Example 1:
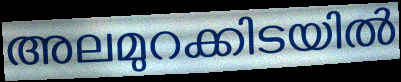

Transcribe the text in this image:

അലമുറക്കിടയിൽ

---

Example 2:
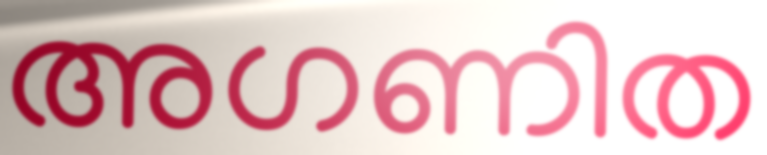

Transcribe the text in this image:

അഗണിത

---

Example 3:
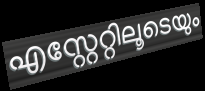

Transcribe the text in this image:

എസ്റ്റേറ്റിലൂടെയും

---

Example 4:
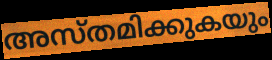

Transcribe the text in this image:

അസ്തമിക്കുകയും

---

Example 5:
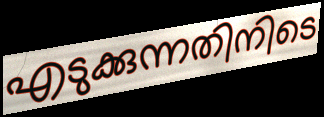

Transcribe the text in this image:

എടുക്കുന്നതിനിടെ